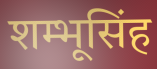
शम्भूसिंह